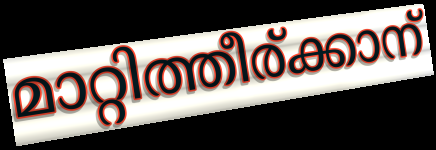
മാറ്റിത്തീര്ക്കാന്